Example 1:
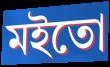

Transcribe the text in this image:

মইতো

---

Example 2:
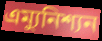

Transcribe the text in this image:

এম্যুনিশ্যন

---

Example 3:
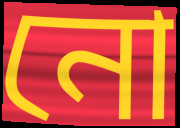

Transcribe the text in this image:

নো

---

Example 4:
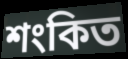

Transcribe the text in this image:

শংকিত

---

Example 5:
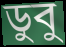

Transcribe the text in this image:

ডুবু